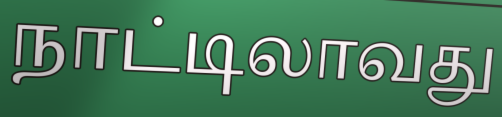
நாட்டிலாவது